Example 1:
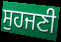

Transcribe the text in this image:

ਸੁਹਜਣੀ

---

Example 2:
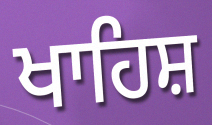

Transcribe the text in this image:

ਖਾਹਿਸ਼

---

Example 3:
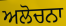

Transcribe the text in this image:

ਅਲੋਚਨਾ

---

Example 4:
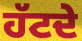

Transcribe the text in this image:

ਹੱਟਦੇ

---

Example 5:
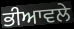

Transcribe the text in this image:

ਭੀਆਵਲੇ